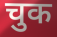
चुक